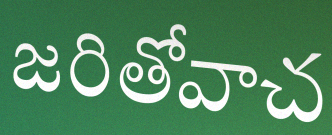
జరితోవాచ